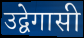
उद्वेगासी